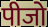
पीजो